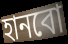
হানবো